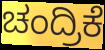
ಚಂದ್ರಿಕೆ